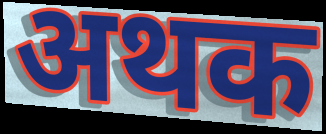
अथक